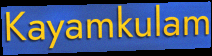
Kayamkulam